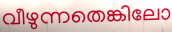
വീഴുന്നതെങ്കിലോ